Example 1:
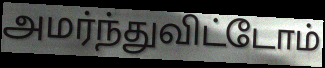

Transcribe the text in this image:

அமர்ந்துவிட்டோம்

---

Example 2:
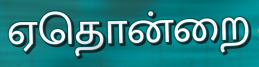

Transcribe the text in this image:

ஏதொன்றை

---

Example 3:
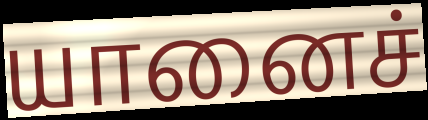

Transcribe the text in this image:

யானைச்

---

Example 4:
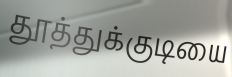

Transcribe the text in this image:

தூத்துக்குடியை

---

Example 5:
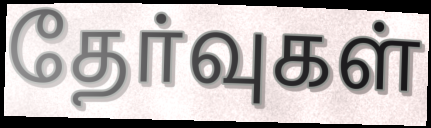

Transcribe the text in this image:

தேர்வுகள்